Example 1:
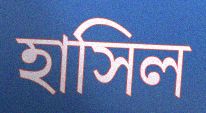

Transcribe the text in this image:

হাসিল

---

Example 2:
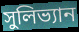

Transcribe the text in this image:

সুলিভ্যান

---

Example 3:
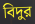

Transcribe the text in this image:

বিদুর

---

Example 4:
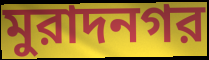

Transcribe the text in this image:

মুরাদনগর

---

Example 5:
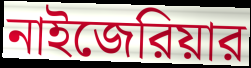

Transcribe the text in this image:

নাইজেরিয়ার